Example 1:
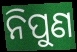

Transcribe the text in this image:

ନିପୁଣ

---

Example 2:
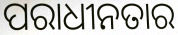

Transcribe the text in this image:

ପରାଧୀନତାର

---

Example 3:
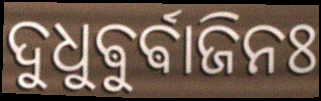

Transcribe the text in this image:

ଦୁଧୁଵୁର୍ଵାଜିନଃ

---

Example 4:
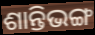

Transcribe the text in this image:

ଶାନ୍ତିଭଙ୍ଗ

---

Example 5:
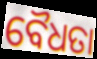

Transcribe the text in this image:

ବୈଧତା